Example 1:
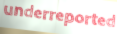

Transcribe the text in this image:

underreported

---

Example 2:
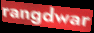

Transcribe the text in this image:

rangdwar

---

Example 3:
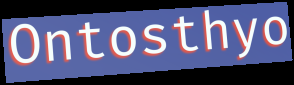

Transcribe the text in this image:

Ontosthyo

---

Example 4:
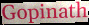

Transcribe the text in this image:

Gopinath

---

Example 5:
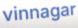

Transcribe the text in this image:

vinnagar